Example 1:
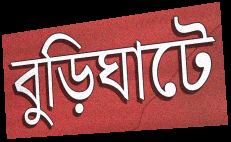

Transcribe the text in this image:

বুড়িঘাটে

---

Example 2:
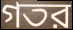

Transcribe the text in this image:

গতর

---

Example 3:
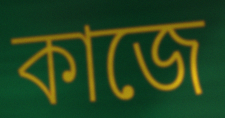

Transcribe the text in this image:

কাজে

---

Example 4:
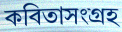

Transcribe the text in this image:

কবিতাসংগ্রহ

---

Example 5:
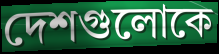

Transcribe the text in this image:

দেশগুলোকে